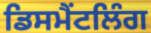
ਡਿਸਮੈਂਟਲਿੰਗ